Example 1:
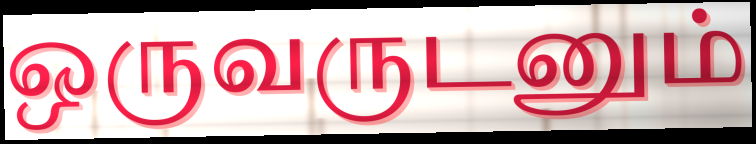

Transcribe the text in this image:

ஒருவருடனும்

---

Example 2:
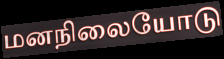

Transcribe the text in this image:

மனநிலையோடு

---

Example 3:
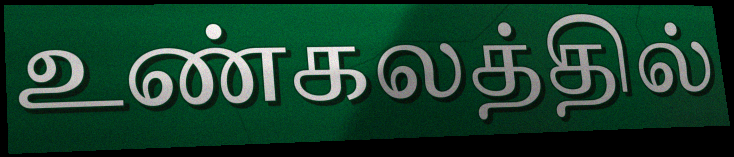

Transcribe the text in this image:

உண்கலத்தில்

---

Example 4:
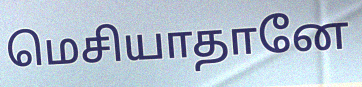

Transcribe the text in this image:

மெசியாதானே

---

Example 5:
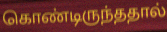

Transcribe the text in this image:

கொண்டிருந்ததால்